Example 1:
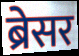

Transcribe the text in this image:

ब्रेसर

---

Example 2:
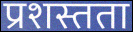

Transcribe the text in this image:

प्रशस्तता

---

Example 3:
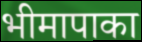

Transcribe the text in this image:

भीमापाका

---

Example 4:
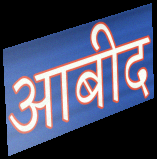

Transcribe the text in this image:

आबीद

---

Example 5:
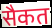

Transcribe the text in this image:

सैकत